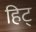
हिट्